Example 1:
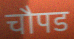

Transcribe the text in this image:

चौपड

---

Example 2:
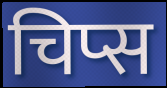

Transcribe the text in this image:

चिप्‍स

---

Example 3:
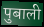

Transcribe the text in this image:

पुबाली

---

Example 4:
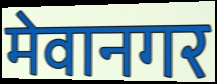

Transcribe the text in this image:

मेवानगर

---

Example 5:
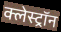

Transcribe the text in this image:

क्लेस्ट्रॉन